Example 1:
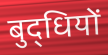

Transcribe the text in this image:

बुद्धियों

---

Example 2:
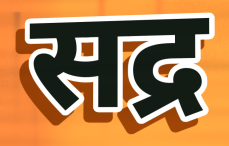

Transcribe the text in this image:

सद्र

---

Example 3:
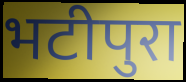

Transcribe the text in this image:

भटीपुरा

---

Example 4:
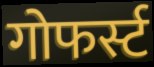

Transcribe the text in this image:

गोफर्स्ट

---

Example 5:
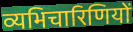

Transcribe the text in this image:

व्यभिचारिणियों